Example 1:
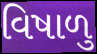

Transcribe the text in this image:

વિષાળુ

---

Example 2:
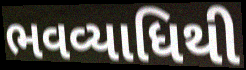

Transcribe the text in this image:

ભવવ્યાધિથી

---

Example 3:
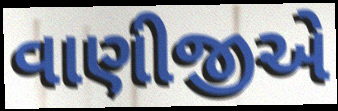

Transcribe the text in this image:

વાણીજીએ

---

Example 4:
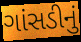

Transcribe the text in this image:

ગાંસડીનું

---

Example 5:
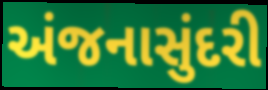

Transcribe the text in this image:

અંજનાસુંદરી